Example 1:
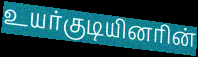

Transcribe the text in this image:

உயர்குடியினரின்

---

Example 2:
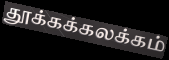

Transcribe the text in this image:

தூக்கக்கலக்கம்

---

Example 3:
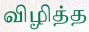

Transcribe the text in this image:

விழித்த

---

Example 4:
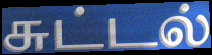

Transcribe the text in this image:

சுட்டல்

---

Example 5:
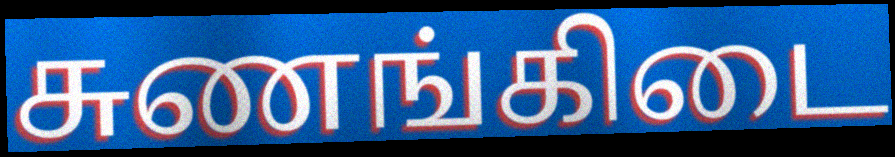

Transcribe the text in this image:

சுணங்கிடை